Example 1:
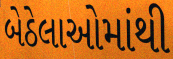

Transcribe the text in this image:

બેઠેલાઓમાંથી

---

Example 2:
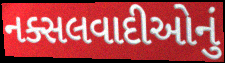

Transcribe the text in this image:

નક્સલવાદીઓનું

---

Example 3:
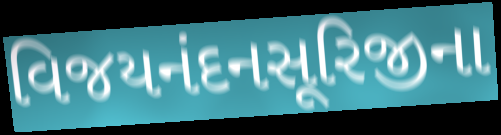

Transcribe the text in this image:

વિજયનંદનસૂરિજીના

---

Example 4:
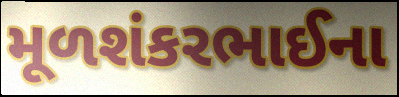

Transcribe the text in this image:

મૂળશંકરભાઈના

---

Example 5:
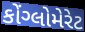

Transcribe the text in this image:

કોંગ્લોમેરેટ